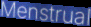
Menstrual